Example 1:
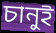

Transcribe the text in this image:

চানুই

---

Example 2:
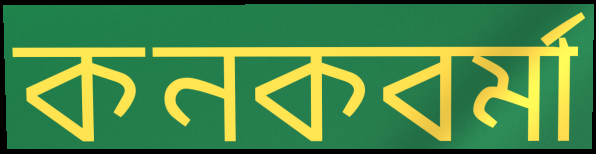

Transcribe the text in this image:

কনকবর্মা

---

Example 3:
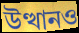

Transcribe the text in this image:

উত্থানও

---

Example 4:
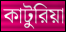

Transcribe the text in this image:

কাটুরিয়া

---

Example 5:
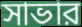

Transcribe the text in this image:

সাভার